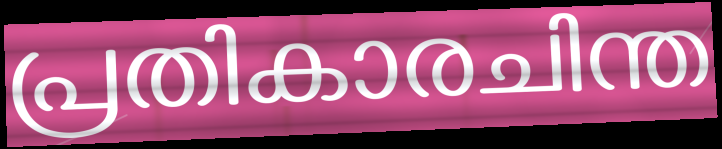
പ്രതികാരചിന്ത